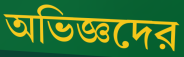
অভিজ্ঞদের